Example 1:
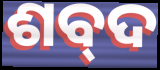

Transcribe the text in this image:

ଶବ୍‍ଦ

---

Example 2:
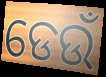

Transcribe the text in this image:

ଡେଉଁ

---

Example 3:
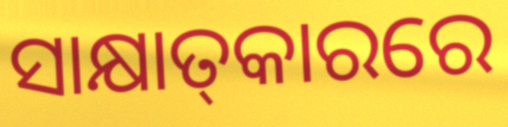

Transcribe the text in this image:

ସାକ୍ଷାତ୍‌କାରରେ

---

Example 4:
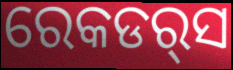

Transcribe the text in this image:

ରେକଡର୍‌ସ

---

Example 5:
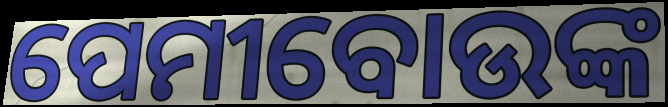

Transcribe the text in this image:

ପେମୀବୋଉଙ୍କ